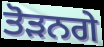
ਤੋੜਨਗੇ